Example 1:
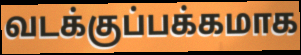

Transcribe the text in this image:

வடக்குப்பக்கமாக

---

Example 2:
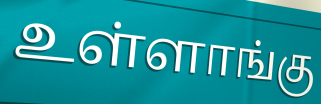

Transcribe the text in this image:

உள்ளாங்கு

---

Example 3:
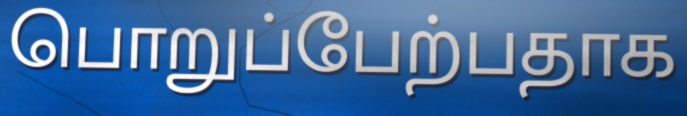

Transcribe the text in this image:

பொறுப்பேற்பதாக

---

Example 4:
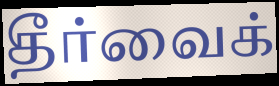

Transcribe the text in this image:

தீர்வைக்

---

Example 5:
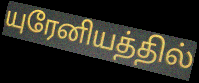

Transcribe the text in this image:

யுரேனியத்தில்